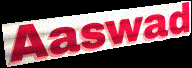
Aaswad